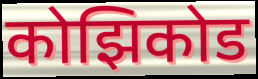
कोझिकोड